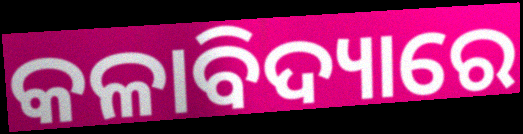
କଳାବିଦ୍ୟାରେ